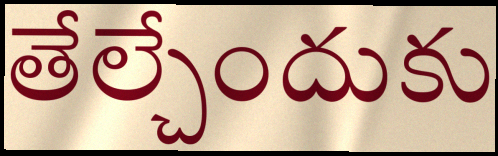
తేల్చేందుకు